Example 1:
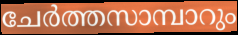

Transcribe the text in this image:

ചേർത്തസാമ്പാറും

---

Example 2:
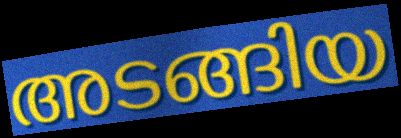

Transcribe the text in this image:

അടങ്ങിയ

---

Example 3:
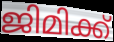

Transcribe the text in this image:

ജിമിക്ക്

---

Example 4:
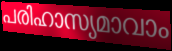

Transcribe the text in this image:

പരിഹാസ്യമാവാം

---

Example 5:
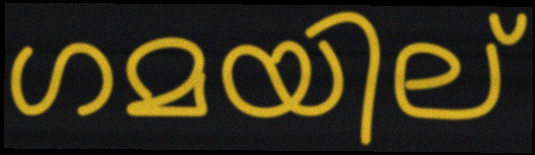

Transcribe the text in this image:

ഗമയില്